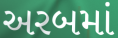
અરબમાં